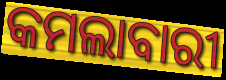
କମଲାବାରୀ